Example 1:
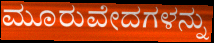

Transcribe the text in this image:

ಮೂರುವೇದಗಳನ್ನು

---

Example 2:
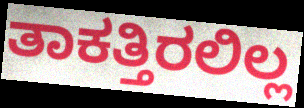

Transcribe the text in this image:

ತಾಕತ್ತಿರಲಿಲ್ಲ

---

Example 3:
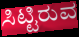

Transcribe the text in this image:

ಸಿಟ್ಟಿರುವ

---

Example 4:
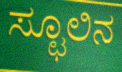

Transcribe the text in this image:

ಸ್ಟೂಲಿನ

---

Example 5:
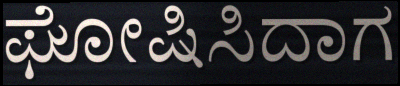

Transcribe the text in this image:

ಘೋಷಿಸಿದಾಗ